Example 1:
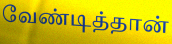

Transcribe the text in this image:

வேண்டித்தான்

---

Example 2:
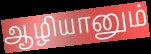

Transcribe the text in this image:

ஆழியானும்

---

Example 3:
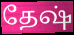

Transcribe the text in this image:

தேஷ்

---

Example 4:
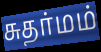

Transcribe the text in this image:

சுதர்மம்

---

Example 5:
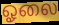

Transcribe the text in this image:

ஓலை